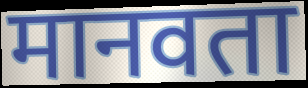
मानवता